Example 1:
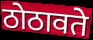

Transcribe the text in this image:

ठोठावते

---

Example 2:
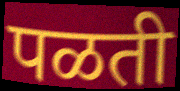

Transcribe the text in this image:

पळती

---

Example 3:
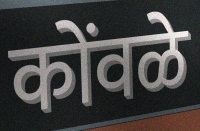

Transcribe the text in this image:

कोंवळे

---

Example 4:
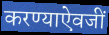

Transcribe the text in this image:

करण्याऐवजीं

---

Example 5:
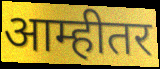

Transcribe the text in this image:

आम्हीतर